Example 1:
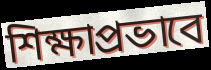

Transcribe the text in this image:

শিক্ষাপ্রভাবে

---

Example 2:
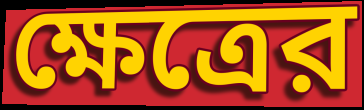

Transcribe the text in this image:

ক্ষেত্রের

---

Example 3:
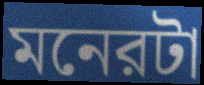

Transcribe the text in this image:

মনেরটা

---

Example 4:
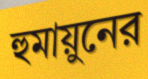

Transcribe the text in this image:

হুমায়ুনের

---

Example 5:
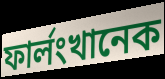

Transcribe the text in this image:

ফার্লংখানেক